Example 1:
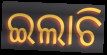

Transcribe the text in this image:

ଇଲାଚି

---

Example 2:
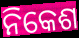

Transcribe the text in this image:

ନିକେଶ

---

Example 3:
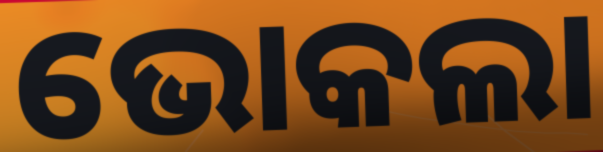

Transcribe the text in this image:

ଭୋକଲା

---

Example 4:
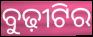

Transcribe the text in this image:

ବୁଢ଼ୀଟିର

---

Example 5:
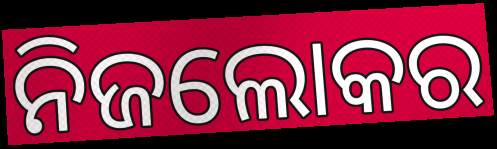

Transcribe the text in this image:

ନିଜଲୋକର